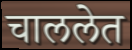
चाललेत